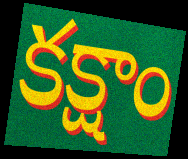
కక్షాం